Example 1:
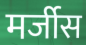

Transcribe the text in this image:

मर्जीस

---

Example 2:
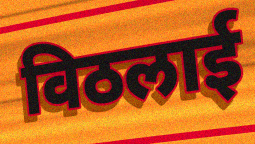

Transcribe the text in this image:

विठलाई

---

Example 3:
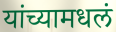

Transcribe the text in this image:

यांच्यामधलं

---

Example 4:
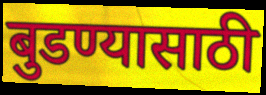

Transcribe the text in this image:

बुडण्यासाठी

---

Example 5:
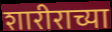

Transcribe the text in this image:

शारीराच्या